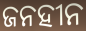
ଜନହୀନ